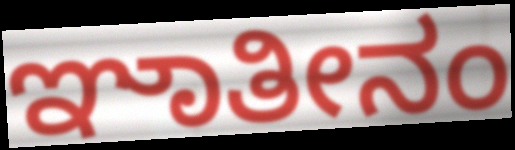
ಞಾತೀನಂ